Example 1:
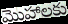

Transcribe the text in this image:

మొహాలకు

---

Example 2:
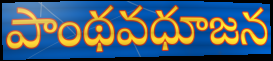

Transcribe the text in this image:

పాంథవధూజన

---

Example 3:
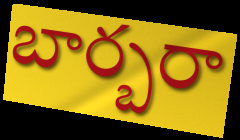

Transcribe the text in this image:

బార్బరా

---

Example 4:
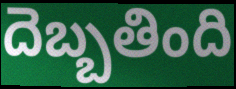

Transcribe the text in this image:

దెబ్బతింది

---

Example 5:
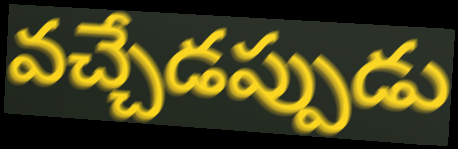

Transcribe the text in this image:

వచ్చేడప్పుడు